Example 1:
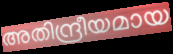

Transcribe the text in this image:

അതിന്ദ്രീയമായ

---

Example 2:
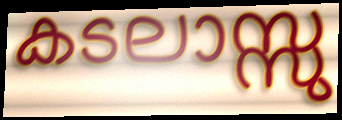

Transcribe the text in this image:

കടലാസ്സു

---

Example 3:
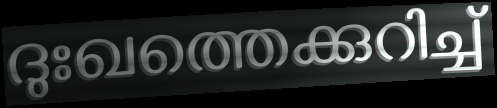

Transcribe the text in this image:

ദുഃഖത്തെക്കുറിച്ച്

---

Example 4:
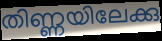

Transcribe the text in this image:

തിണ്ണയിലേക്കു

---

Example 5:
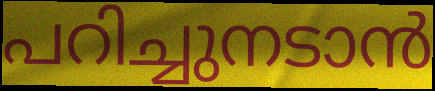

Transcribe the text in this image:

പറിച്ചുനടാൻ